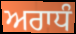
ਅਰਾਧੰ